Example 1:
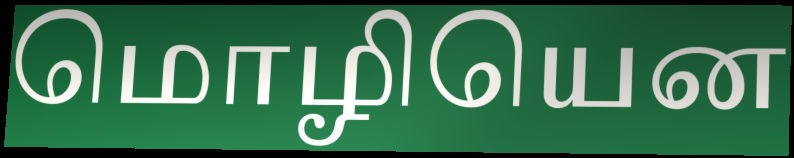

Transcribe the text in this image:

மொழியென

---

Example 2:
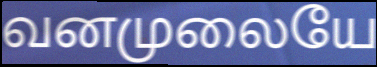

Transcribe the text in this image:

வனமுலையே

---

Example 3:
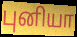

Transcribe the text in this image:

புனியா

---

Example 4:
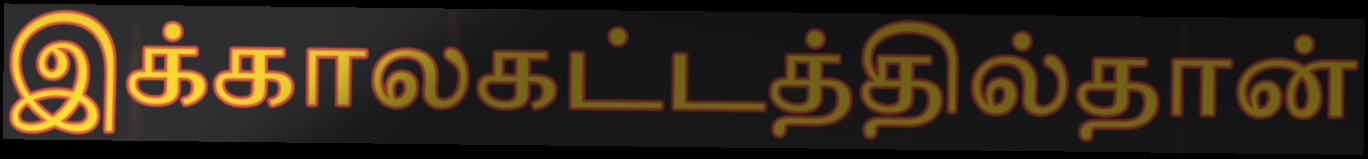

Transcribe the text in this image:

இக்காலகட்டத்தில்தான்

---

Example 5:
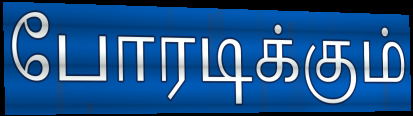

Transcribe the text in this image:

போரடிக்கும்